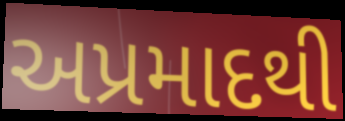
અપ્રમાદથી